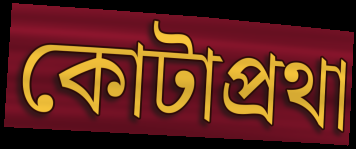
কোটাপ্রথা